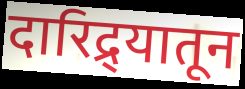
दारिद्र्यातून